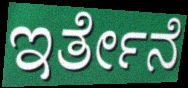
ಇರ್ತೇನೆ